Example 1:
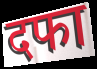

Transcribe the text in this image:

दफा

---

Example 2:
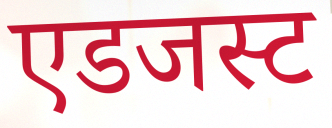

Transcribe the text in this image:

एडजस्ट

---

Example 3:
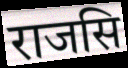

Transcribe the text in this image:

राजसि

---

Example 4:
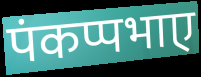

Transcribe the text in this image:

पंकप्पभाए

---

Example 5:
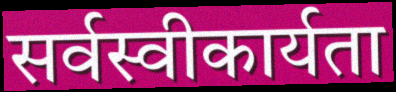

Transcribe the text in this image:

सर्वस्वीकार्यता